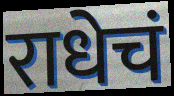
राधेचं